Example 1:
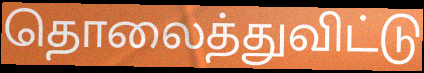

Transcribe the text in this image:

தொலைத்துவிட்டு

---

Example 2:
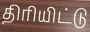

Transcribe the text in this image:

திரியிட்டு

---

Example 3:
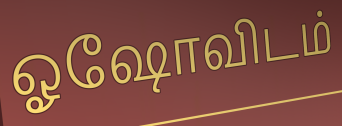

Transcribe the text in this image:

ஓஷோவிடம்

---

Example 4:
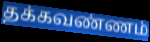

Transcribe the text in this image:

தக்கவண்ணம்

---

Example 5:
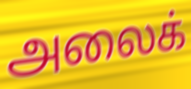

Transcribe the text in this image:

அலைக்